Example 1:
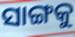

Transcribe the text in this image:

ସାଙ୍ଗକୁ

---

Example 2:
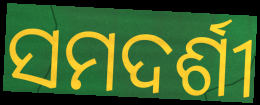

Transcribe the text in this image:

ସମଦର୍ଶୀ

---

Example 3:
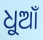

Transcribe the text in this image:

ଧୁଆଁ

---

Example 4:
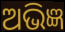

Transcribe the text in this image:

ଅଭିଜ୍ଞ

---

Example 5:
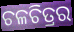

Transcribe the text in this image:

ଚଳଚିତ୍ରର